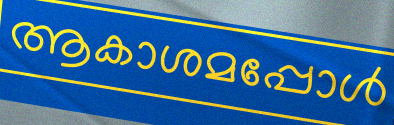
ആകാശമപ്പോൾ